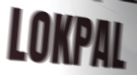
LOKPAL